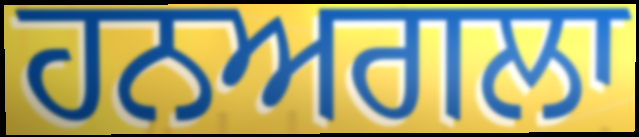
ਹਨਅਗਲਾ